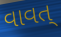
વાવત્